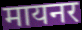
मायनर